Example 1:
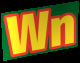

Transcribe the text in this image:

Wn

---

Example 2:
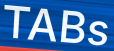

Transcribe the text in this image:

TABs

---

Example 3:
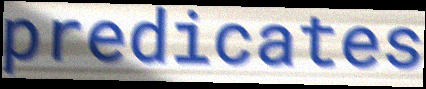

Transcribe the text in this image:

predicates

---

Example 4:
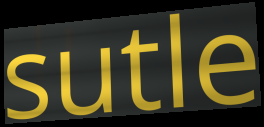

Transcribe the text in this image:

sutle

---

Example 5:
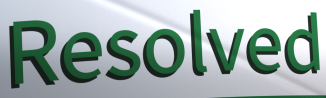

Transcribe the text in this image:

Resolved